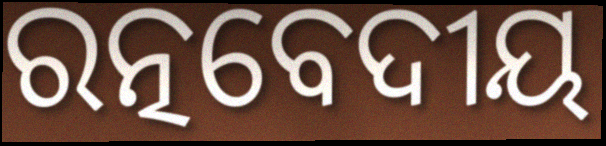
ରତ୍ନବେଦୀୟ